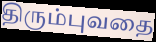
திரும்புவதை